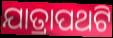
ଯାତ୍ରାପଥଟି